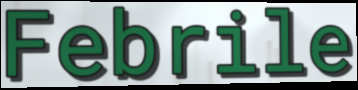
Febrile